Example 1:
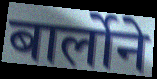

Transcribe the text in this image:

बार्लोने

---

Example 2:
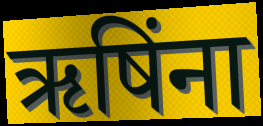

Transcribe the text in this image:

ऋषिंना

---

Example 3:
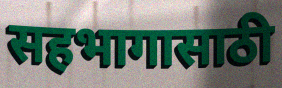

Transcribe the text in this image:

सहभागासाठी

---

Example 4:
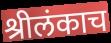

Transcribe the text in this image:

श्रीलंकाच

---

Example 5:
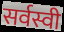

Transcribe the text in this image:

सर्वस्वी